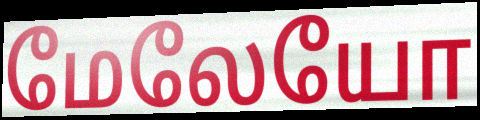
மேலேயோ